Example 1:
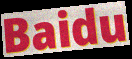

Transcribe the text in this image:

Baidu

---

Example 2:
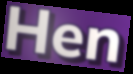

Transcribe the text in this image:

Hen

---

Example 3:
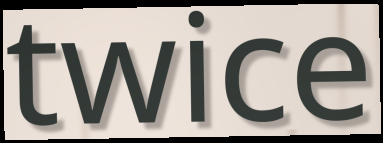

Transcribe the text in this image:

twice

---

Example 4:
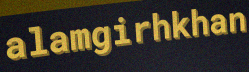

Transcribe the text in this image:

alamgirhkhan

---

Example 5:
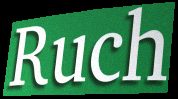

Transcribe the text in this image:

Ruch